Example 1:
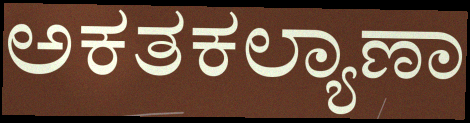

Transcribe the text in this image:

ಅಕತಕಲ್ಯಾಣಾ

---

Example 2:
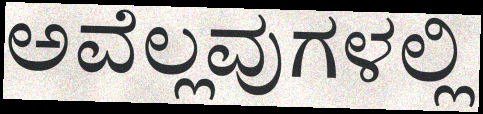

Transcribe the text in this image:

ಅವೆಲ್ಲವುಗಳಲ್ಲಿ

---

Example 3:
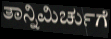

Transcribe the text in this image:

ತಾನ್ನಿಮಿರ್ಚುಗೆ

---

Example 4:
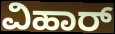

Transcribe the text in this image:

ವಿಹಾರ್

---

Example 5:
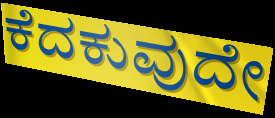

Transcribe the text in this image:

ಕೆದಕುವುದೇ